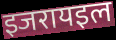
इजरायइल